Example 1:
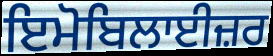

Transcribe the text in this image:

ਇਮੋਬਿਲਾਈਜ਼ਰ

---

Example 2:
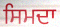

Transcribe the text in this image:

ਸਿਮਦਾ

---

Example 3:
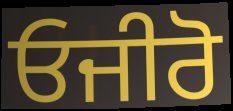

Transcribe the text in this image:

ਓਜੀਰੋ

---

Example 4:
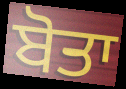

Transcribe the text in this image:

ਬੋਤਾ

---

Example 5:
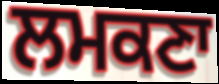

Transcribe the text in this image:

ਲਮਕਣਾ